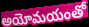
అయోమయంతో